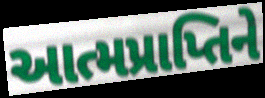
આત્મપ્રાપ્તિને